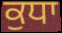
ਕੁਧਾ